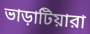
ভাড়াটিয়ারা